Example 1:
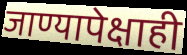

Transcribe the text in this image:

जाण्यापेक्षाही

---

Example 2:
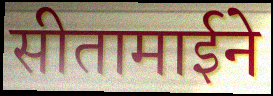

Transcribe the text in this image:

सीतामाईने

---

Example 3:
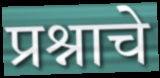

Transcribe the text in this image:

प्रश्नाचे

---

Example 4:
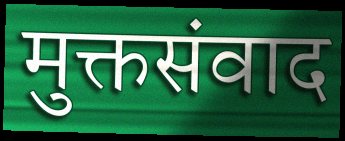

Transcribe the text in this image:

मुक्तसंवाद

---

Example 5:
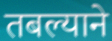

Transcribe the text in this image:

तबल्याने